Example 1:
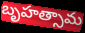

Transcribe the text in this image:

బృహత్సామ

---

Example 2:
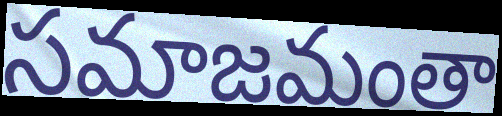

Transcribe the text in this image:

సమాజమంతా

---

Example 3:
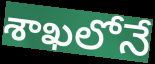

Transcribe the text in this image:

శాఖలోనే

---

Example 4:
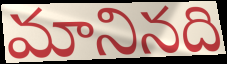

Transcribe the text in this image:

మానినది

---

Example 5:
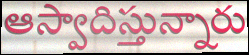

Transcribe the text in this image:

ఆస్వాదిస్తున్నారు